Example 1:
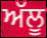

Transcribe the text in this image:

ਅੱਲੂ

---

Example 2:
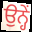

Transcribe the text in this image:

ਉਨ੍ਹੇਂ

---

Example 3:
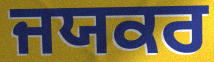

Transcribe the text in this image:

ਜਯਕਰ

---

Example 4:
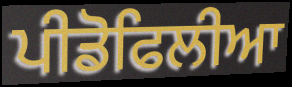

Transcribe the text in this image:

ਪੀਡੋਫਿਲੀਆ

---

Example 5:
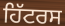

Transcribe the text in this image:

ਹਿੱਟਰਸ